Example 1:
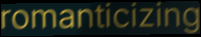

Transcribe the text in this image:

romanticizing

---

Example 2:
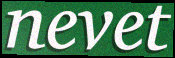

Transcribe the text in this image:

nevet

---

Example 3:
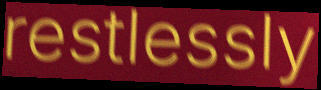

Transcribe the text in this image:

restlessly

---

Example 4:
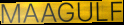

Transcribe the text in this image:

MAAGULF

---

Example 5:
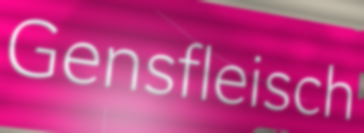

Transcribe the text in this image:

Gensfleisch